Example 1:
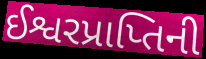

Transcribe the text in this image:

ઈશ્વરપ્રાપ્તિની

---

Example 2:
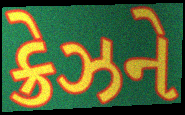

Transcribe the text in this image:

ક્રેઝને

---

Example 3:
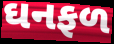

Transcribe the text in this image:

ઘનફળ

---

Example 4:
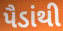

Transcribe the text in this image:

પૈડાંથી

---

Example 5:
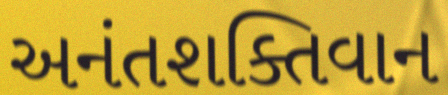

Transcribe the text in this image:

અનંતશક્તિવાન